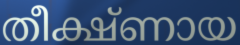
തീക്ഷ്ണായ